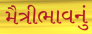
મૈત્રીભાવનું